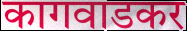
कागवाडकर